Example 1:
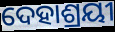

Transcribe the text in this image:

ଦେହାଶ୍ରୟୀ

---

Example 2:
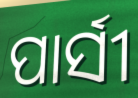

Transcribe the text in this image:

ପାର୍ସୀ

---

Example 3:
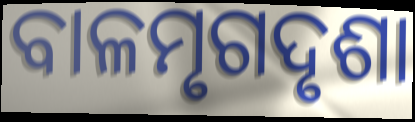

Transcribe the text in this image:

ବାଳମୃଗଦୃଶା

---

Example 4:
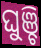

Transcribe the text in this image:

ଘୁଞ୍ଚି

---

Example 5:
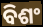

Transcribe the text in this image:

ବିଶଂ